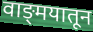
वाङ्मयातून